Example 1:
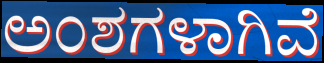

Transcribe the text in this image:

ಅಂಶಗಳಾಗಿವೆ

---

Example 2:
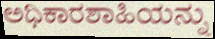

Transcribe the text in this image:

ಅಧಿಕಾರಶಾಹಿಯನ್ನು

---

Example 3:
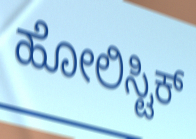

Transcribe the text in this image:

ಹೋಲಿಸ್ಟಿಕ್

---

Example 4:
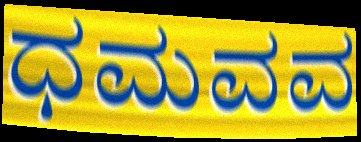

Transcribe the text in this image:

ಧಮವವ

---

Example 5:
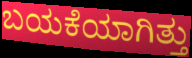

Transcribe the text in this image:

ಬಯಕೆಯಾಗಿತ್ತು